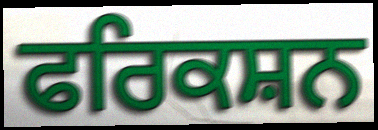
ਫਰਿਕਸ਼ਨ